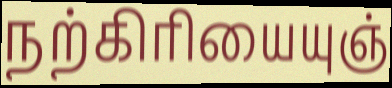
நற்கிரியையுஞ்